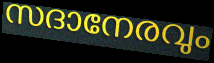
സദാനേരവും